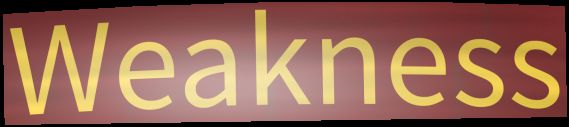
Weakness